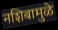
नशिबामुळे